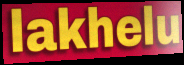
lakhelu